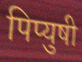
पिप्युषी